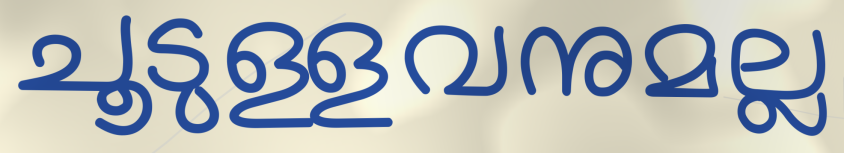
ചൂടുള്ളവനുമല്ല